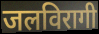
जलविरागी